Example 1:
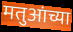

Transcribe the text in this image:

मतुआंच्या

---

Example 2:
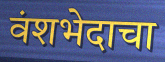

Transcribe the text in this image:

वंशभेदाचा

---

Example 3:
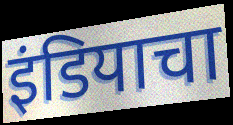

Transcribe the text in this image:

इंडियाचा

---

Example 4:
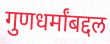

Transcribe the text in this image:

गुणधर्मांबद्दल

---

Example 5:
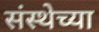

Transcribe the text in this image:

संस्थेच्या